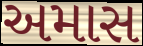
અમાસ